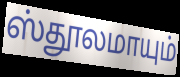
ஸ்தூலமாயும்